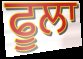
ਫੂਲਾ